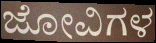
ಜೋವಿಗಳ